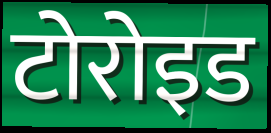
टोरोइड